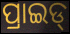
ପ୍ରାଇଡ୍